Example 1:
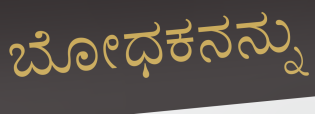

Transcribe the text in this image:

ಬೋಧಕನನ್ನು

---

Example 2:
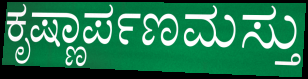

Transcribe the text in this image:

ಕೃಷ್ಣಾರ್ಪಣಮಸ್ತು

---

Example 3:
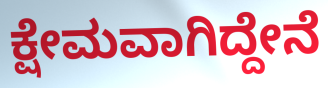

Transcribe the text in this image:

ಕ್ಷೇಮವಾಗಿದ್ದೇನೆ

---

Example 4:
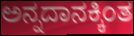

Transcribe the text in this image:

ಅನ್ನದಾನಕ್ಕಿಂತ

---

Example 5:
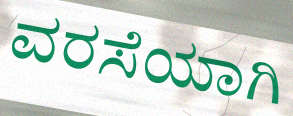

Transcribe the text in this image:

ವರಸೆಯಾಗಿ